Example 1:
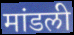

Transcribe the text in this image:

मांडली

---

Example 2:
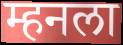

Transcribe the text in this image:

म्हनला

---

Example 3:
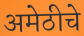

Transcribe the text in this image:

अमेठीचे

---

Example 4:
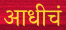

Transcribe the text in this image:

आधीचं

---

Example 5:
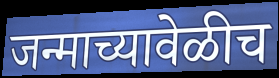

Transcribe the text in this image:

जन्माच्यावेळीच